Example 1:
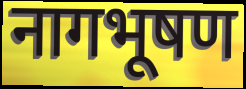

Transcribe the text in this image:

नागभूषण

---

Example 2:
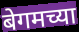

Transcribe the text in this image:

बेगमच्या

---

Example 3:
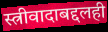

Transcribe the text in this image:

स्त्रीवादाबद्दलही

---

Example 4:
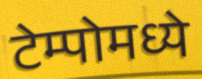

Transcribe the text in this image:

टेम्पोमध्ये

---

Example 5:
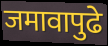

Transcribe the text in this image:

जमावापुढे